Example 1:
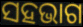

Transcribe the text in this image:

ସହଭାଗ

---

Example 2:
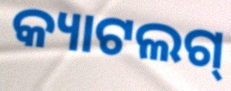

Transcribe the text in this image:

କ୍ୟାଟଲଗ୍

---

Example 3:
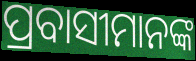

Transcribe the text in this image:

ପ୍ରବାସୀମାନଙ୍କ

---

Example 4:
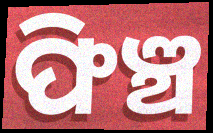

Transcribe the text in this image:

ଫିଞ୍ଚ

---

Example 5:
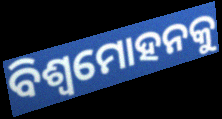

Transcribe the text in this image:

ବିଶ୍ଵମୋହନକୁ